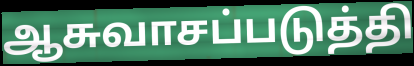
ஆசுவாசப்படுத்தி